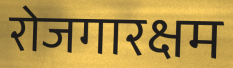
रोजगारक्षम